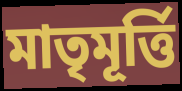
মাতৃমূর্ত্তি